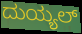
ದುಯ್ಯಲ್